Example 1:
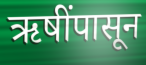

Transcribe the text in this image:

ऋषींपासून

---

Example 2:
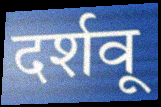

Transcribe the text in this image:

दर्शवू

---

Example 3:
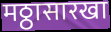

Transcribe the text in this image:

मठ्ठासारखा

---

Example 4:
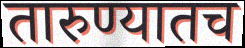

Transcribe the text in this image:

तारुण्यातच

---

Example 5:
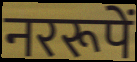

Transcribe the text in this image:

नररूपें